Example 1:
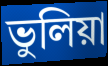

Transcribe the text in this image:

ভুলিয়া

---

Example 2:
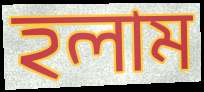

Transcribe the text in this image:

হলাম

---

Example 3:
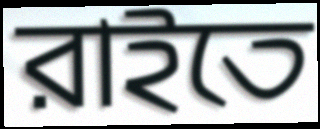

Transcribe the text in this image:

রাইতে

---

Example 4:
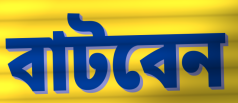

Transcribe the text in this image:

বাটবেন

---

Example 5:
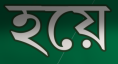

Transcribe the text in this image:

হয়ে